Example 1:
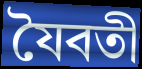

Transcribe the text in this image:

যৈবতী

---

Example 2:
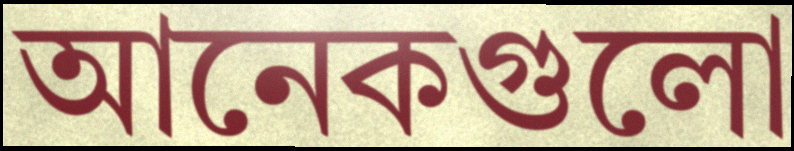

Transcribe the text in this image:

আনেকগুলো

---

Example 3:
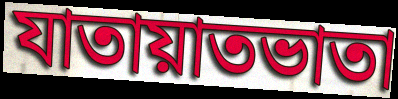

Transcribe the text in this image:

যাতায়াতভাতা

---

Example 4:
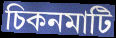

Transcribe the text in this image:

চিকনমাটি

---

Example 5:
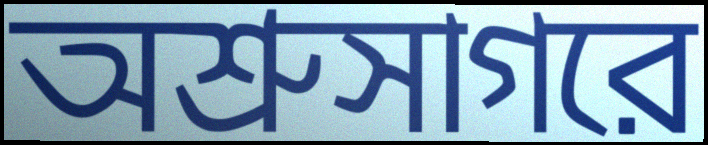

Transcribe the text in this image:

অশ্রুসাগরে